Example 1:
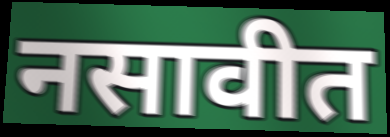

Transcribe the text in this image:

नसावीत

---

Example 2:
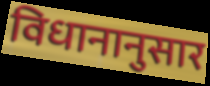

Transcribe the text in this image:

विधानानुसार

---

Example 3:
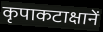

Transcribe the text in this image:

कृपाकटाक्षानें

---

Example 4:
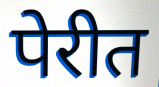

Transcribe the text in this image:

पेरीत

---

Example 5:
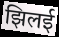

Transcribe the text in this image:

झिलई